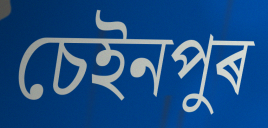
চেইনপুৰ